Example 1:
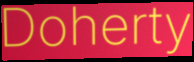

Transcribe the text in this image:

Doherty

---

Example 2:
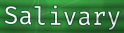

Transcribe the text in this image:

Salivary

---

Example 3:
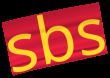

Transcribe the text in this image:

sbs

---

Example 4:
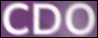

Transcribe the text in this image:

CDO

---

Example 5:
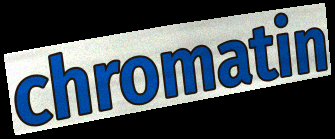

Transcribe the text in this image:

chromatin